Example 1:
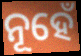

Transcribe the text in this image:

ନୂହେଁ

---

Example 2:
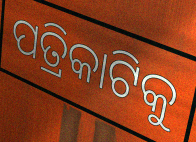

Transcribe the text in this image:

ପତ୍ରିକାଟିକୁ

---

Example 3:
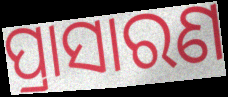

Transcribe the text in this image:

ପ୍ରାସାରଣ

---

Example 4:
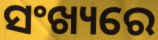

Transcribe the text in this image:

ସଂଖ୍ୟରେ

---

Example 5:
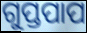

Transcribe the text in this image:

ଗୁପ୍ତପାପ